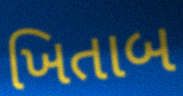
ખિતાબ